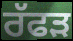
ਰੱਫੜ